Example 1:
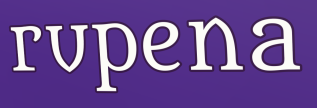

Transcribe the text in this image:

rupena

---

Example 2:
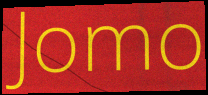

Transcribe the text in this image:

Jomo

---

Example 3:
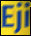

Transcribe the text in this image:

Eji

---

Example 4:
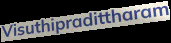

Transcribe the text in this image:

Visuthipradittharam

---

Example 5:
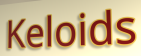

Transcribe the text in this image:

Keloids